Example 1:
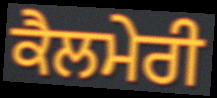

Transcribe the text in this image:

ਕੈਲਮੇਰੀ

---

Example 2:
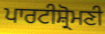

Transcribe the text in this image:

ਪਾਰਟੀਸ਼੍ਰੋਮਣੀ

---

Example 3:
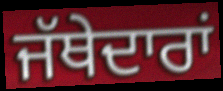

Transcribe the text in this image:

ਜੱਥੇਦਾਰਾਂ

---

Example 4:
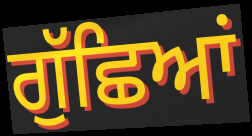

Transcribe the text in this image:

ਗੁੱਛਿਆਂ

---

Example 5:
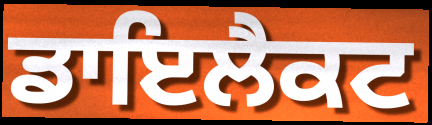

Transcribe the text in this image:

ਡਾਇਲੈਕਟ